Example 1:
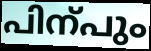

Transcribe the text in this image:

പിന്പും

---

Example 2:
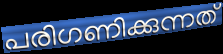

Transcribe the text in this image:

പരിഗണിക്കുന്നത്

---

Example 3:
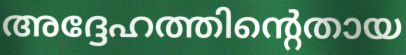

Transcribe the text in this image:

അദ്ദേഹത്തിന്റെതായ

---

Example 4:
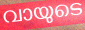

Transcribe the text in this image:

വായുടെ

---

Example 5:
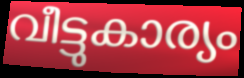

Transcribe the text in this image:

വീട്ടുകാര്യം